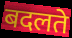
बदलते